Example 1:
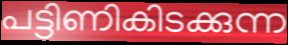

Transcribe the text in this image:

പട്ടിണികിടക്കുന്ന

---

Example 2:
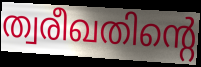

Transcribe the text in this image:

ത്വരീഖതിന്റെ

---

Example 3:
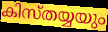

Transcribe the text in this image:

കിസ്തയ്യയും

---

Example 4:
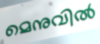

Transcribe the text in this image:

മെനുവിൽ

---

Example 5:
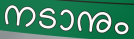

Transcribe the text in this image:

നടാനും